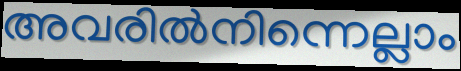
അവരിൽനിന്നെല്ലാം